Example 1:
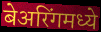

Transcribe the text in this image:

बेअरिंगमध्ये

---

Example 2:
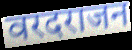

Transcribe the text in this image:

वरदराजन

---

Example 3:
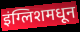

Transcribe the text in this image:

इंग्लिशमधून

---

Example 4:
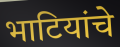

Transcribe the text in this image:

भाटियांचे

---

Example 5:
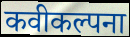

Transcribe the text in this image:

कवीकल्पना